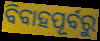
ବିବାହପୂର୍ବରୁ